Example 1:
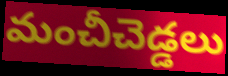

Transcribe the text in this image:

మంచీచెడ్డలు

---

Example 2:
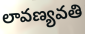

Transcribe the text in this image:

లావణ్యవతి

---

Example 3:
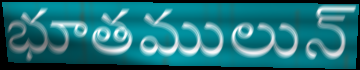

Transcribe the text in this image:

భూతములున్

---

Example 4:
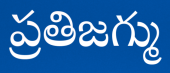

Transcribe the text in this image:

ప్రతిజగ్ము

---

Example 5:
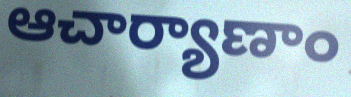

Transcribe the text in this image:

ఆచార్యాణాం